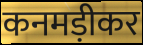
कनमड़ीकर